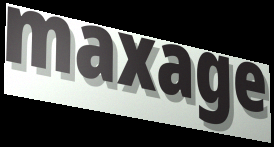
maxage